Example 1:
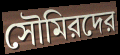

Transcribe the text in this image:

সৌমিরদের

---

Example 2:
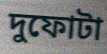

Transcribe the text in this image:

দুফোটা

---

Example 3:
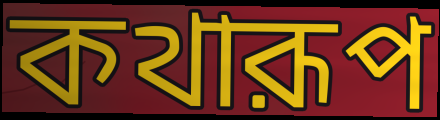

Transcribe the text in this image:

কথারূপ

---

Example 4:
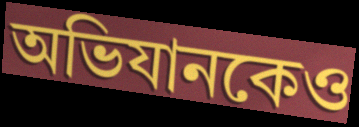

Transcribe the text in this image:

অভিযানকেও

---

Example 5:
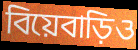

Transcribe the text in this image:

বিয়েবাড়িও